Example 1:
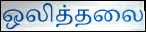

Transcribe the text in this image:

ஒலித்தலை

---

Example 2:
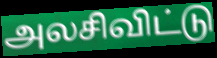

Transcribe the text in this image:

அலசிவிட்டு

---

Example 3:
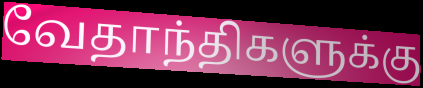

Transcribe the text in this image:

வேதாந்திகளுக்கு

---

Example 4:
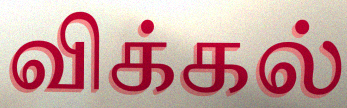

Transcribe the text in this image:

விக்கல்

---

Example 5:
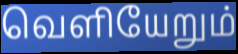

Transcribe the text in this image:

வெளியேறும்